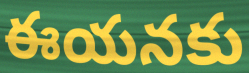
ఈయనకు